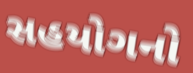
સહયોગનો